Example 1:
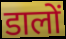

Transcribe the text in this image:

डालों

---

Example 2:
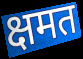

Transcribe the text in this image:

क्षमत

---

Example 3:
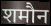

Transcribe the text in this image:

शमौन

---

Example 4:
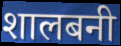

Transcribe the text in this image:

शालबनी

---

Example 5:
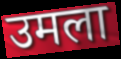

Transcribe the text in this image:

उमला